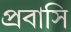
প্রবাসি